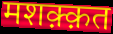
मशक़्क़त